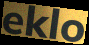
eklo